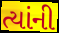
ત્યાંની